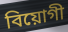
বিয়োগী